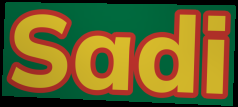
Sadi